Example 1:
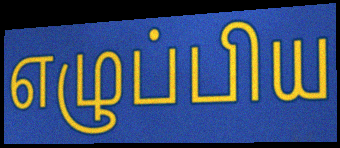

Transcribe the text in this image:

எழுப்பிய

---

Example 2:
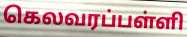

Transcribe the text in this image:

கெலவரப்பள்ளி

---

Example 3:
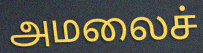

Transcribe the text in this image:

அமலைச்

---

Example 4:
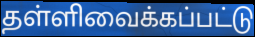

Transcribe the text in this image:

தள்ளிவைக்கப்பட்டு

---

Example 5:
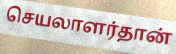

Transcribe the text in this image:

செயலாளர்தான்